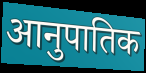
आनुपातिक